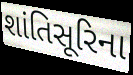
શાંતિસૂરિના